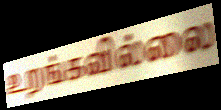
உறங்கவில்லை